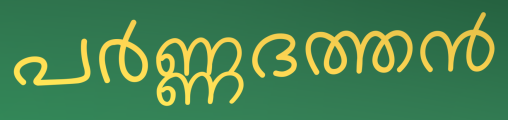
പർണ്ണദത്തൻ